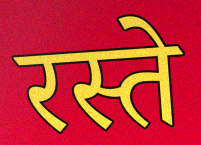
रस्ते